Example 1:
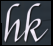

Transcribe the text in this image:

hk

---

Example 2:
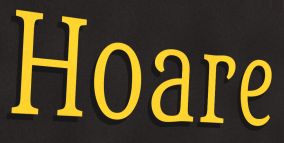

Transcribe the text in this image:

Hoare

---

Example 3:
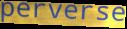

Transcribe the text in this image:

perverse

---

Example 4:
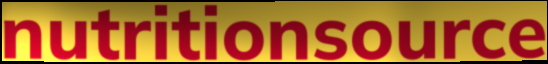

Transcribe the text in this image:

nutritionsource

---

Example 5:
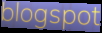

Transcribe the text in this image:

blogspot